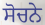
ਸੋਚਨੇ